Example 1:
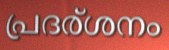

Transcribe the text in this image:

പ്രദര്ശനം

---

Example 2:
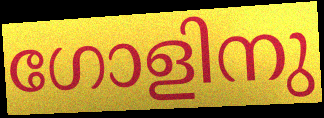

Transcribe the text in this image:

ഗോളിനു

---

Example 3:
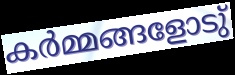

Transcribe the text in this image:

കർമ്മങ്ങളോടു്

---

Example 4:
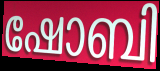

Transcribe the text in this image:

ഷോബി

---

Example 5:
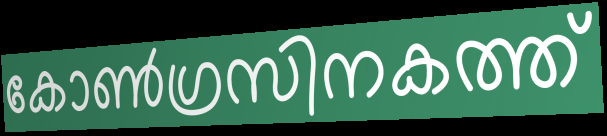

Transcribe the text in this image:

കോൺഗ്രസിനകത്ത്